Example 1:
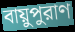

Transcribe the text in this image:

বায়ুপুরাণ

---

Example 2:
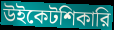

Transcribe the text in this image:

উইকেটশিকারি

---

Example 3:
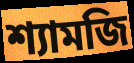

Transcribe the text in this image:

শ্যামজি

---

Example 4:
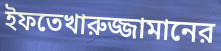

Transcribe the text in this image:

ইফতেখারুজ্জামানের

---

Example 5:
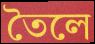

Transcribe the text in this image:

তৈলে